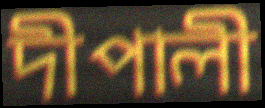
দীপালী